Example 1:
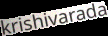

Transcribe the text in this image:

krishivarada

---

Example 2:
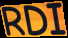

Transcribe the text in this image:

RDI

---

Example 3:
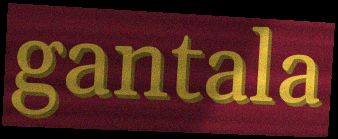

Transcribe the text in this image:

gantala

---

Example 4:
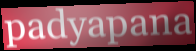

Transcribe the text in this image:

padyapana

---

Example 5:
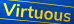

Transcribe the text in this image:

Virtuous